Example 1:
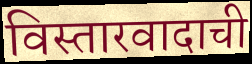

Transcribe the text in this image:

विस्तारवादाची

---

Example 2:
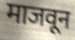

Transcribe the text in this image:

माजवून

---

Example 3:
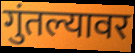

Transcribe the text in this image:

गुंतल्यावर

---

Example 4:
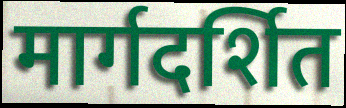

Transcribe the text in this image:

मार्गदर्शित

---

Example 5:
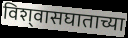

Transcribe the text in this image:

विश्वासघाताच्या